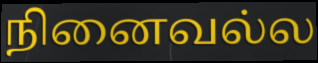
நினைவல்ல